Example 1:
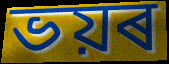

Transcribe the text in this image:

ভয়ৰ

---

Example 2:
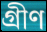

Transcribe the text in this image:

গ্ৰীণ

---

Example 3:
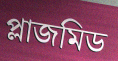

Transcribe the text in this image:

প্লাজমিড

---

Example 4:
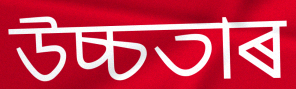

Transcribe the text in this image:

উচ্চতাৰ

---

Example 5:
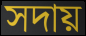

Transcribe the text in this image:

সদায়